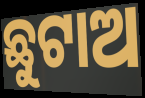
ଛୁଟାଅ